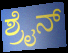
ಶ್ರೈನ್